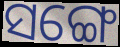
ସଙ୍ଗେ